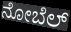
ನೋಬೆಲ್